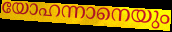
യോഹന്നാനെയും